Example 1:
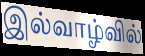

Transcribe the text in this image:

இல்வாழ்வில்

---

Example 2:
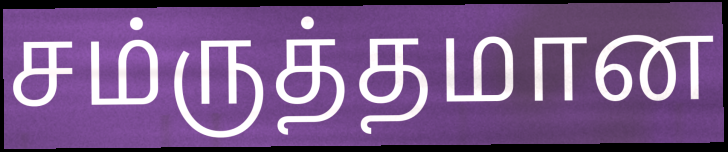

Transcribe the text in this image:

சம்ருத்தமான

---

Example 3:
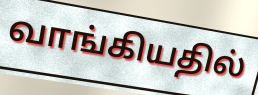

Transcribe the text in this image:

வாங்கியதில்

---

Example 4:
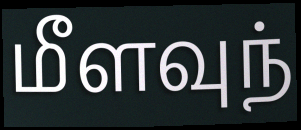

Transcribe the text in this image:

மீளவுந்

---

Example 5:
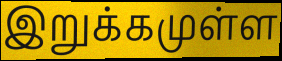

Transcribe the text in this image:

இறுக்கமுள்ள